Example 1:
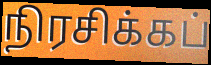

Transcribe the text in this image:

நிரசிக்கப்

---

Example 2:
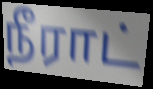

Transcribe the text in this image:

நீராட்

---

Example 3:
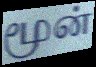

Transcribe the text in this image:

மூன்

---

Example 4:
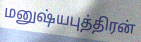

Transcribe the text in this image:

மனுஷ்யபுத்திரன்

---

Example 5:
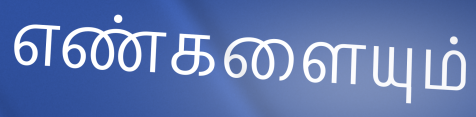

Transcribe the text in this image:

எண்களையும்